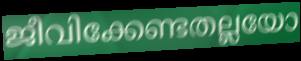
ജീവിക്കേണ്ടതല്ലയോ